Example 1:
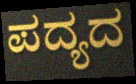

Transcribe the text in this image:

ಪದ್ಯದ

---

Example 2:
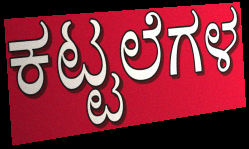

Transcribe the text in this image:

ಕಟ್ಟಲೆಗಳ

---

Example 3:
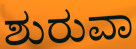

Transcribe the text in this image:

ಶುರುವಾ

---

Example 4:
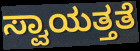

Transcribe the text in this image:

ಸ್ವಾಯತ್ತತೆ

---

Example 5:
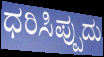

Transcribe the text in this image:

ಧರಿಸಿಪ್ಪುದು